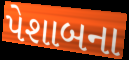
પેશાબના